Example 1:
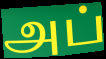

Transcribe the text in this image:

அப்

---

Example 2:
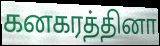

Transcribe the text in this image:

கனகரத்தினா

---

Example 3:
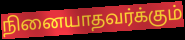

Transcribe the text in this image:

நினையாதவர்க்கும்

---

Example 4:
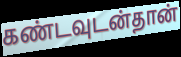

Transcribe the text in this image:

கண்டவுடன்தான்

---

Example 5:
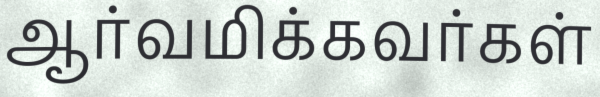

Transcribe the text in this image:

ஆர்வமிக்கவர்கள்